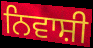
ਨਿਵਾਸ਼ੀ